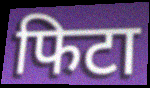
फिटा